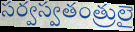
సర్వస్వతంత్రులై